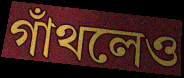
গাঁথলেও